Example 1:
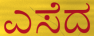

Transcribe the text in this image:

ಎಸೆದ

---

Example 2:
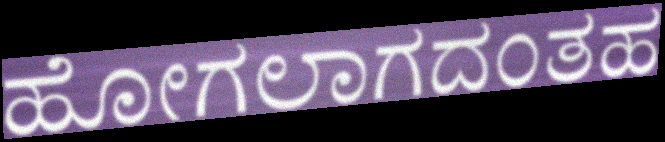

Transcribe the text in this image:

ಹೋಗಲಾಗದಂತಹ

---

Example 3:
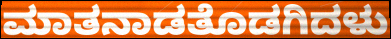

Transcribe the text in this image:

ಮಾತನಾಡತೊಡಗಿದಳು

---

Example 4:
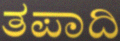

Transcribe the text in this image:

ತಪಾದಿ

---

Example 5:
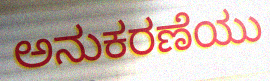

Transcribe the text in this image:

ಅನುಕರಣೆಯು